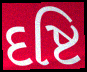
દષ્ટિ